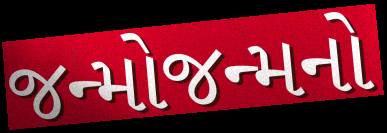
જન્મોજન્મનો